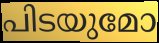
പിടയുമോ